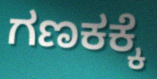
ಗಣಕಕ್ಕೆ